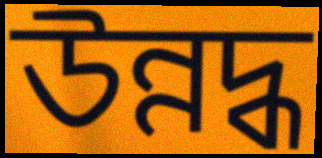
উন্নদ্ধ